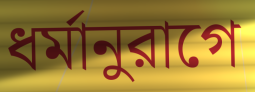
ধর্মানুরাগে